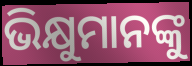
ଭିକ୍ଷୁମାନଙ୍କୁ